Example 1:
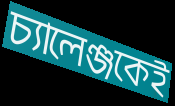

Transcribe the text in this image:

চ্যালেঞ্জকেই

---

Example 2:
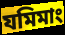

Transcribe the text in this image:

যমিমাং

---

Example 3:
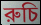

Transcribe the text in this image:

রুচি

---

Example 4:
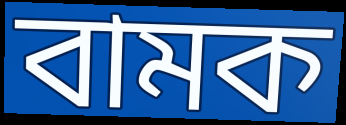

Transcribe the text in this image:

বামক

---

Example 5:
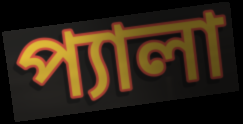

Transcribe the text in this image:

প্যালা